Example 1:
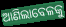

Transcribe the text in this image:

ଆଣିଲାବେଳକୁ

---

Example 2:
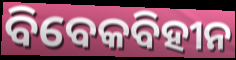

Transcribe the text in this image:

ବିବେକବିହୀନ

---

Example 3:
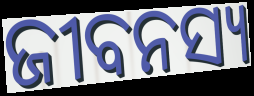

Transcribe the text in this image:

ଜୀବନସ୍ୟ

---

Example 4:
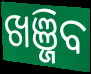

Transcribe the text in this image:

ଖଞ୍ଜିବ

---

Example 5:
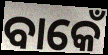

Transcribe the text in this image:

ବାକେଁ